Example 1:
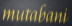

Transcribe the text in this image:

mutabani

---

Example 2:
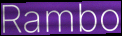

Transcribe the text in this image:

Rambo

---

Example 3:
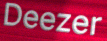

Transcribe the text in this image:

Deezer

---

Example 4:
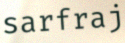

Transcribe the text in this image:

sarfraj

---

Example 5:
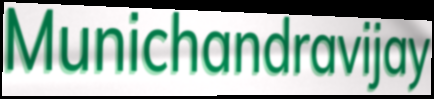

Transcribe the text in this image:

Munichandravijay